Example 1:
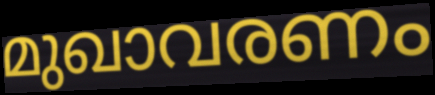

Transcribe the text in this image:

മുഖാവരണം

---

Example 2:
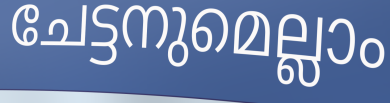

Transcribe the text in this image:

ചേട്ടനുമെല്ലാം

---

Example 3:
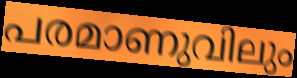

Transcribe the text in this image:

പരമാണുവിലും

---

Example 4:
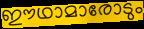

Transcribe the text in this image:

ഈഥാമാരോടും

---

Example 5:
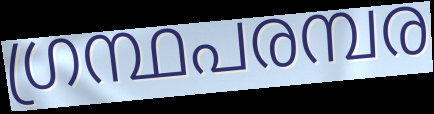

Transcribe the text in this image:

ഗ്രന്ഥപരമ്പര